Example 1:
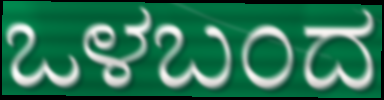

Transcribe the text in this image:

ಒಳಬಂದ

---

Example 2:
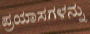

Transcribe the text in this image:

ಪ್ರಯಾಸಗಳನ್ನು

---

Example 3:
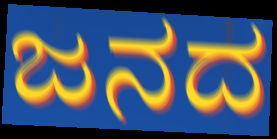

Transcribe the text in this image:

ಜನದ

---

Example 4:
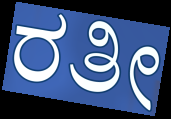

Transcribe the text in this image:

ರತೀ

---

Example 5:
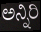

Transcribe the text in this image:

ಅನ್ನಿರಿ